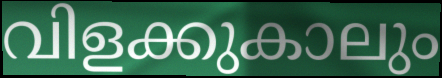
വിളക്കുകാലും